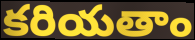
కరియతాం